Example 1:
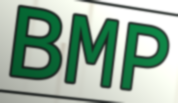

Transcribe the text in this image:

BMP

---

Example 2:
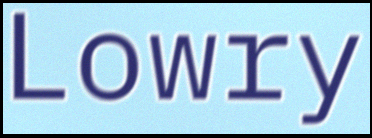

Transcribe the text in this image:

Lowry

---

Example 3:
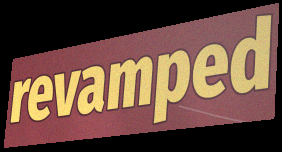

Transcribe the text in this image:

revamped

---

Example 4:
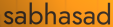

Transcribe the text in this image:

sabhasad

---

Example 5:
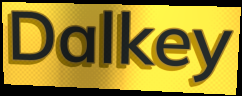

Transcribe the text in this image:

Dalkey